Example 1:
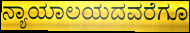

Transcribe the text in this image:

ನ್ಯಾಯಾಲಯದವರೆಗೂ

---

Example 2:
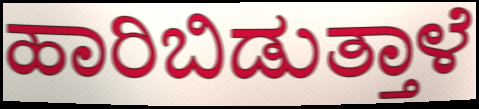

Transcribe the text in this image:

ಹಾರಿಬಿಡುತ್ತಾಳೆ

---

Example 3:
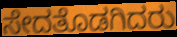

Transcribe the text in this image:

ಸೇದತೊಡಗಿದರು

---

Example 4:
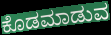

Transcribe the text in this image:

ಕೊಡಮಾಡುವ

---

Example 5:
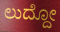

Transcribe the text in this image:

ಲುದ್ದೋ